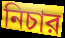
নিচার